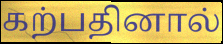
கற்பதினால்